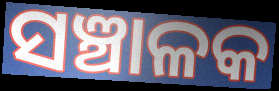
ସଞ୍ଚାଳକ